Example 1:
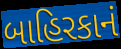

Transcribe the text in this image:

બાહિરકાનં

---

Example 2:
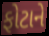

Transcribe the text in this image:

ફોટાને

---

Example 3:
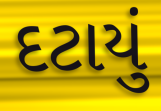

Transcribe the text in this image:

દટાયું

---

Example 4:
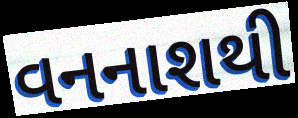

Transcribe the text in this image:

વનનાશથી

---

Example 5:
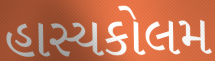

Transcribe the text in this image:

હાસ્યકોલમ